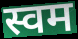
स्वम